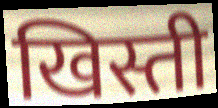
खिस्ती